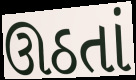
ઊઠતાં